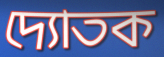
দ্যোতক